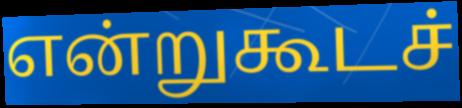
என்றுகூடச்